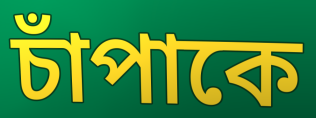
চাঁপাকে